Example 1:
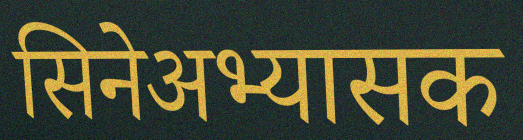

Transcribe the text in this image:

सिनेअभ्यासक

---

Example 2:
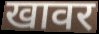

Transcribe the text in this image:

खावर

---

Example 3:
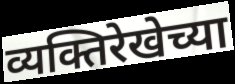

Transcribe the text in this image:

व्यक्तिरेखेच्या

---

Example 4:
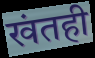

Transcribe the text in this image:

खंतही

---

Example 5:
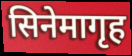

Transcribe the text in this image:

सिनेमागृह